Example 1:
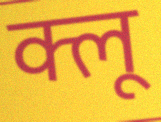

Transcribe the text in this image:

क्लू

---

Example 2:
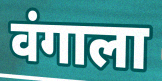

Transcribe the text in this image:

वंगाला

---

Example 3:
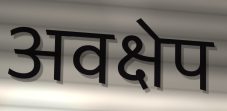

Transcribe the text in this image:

अवक्षेप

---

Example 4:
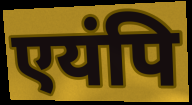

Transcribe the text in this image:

एयंपि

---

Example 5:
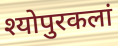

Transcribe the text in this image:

श्योपुरकलां